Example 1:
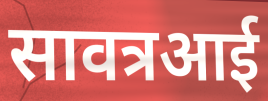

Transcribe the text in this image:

सावत्रआई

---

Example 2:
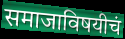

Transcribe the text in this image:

समाजाविषयीचं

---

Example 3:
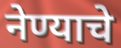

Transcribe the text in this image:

नेण्याचे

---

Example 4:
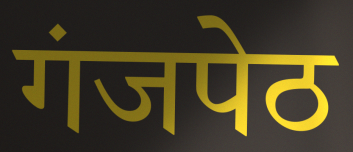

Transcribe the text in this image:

गंजपेठ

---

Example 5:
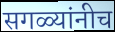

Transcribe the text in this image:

सगळ्यांनीच